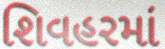
શિવહરમાં